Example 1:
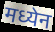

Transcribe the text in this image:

मध्येन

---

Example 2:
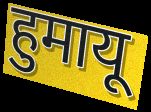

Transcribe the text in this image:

हुमायू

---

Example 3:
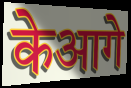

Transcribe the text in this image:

केआगे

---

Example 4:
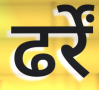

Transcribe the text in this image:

ढर्रें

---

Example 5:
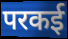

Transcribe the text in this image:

परकई